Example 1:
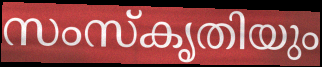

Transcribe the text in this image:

സംസ്കൃതിയും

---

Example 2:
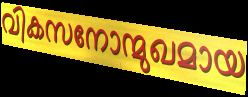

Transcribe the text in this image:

വികസനോന്മുഖമായ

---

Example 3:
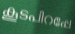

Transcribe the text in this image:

കൂടപിറപ്പേ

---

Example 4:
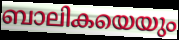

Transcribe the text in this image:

ബാലികയെയും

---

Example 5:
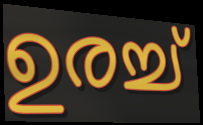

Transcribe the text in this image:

ഉരച്ച്